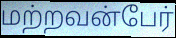
மற்றவன்பேர்